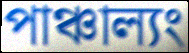
পাঞ্চাল্যং